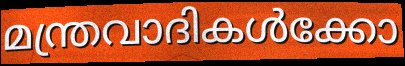
മന്ത്രവാദികൾക്കോ